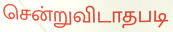
சென்றுவிடாதபடி